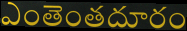
ఎంతెంతదూరం